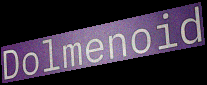
Dolmenoid